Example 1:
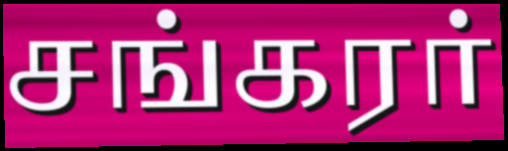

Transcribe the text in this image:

சங்கரர்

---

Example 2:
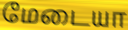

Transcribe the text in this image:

மேடையா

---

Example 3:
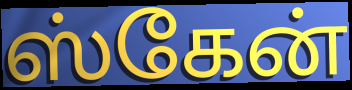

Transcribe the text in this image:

ஸ்கேன்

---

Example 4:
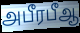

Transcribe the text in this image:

அபீரபீஆ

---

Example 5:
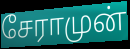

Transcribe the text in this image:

சேராமுன்